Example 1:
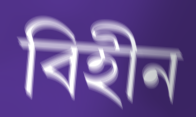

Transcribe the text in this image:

বিহীন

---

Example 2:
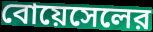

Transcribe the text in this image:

বোয়েসেলের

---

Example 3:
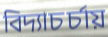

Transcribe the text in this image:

বিদ্যাচর্চায়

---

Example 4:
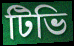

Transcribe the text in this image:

টিভি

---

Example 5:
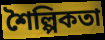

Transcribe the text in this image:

শৈল্পিকতা